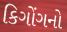
કિગોંગનો